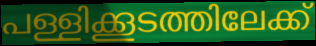
പള്ളിക്കൂടത്തിലേക്ക്